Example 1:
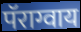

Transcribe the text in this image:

पॅराग्वाय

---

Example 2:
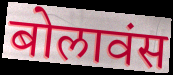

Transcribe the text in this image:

बोलावंस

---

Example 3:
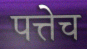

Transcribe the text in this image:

पत्तेच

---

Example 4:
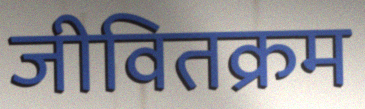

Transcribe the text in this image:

जीवितक्रम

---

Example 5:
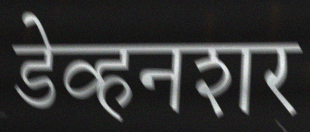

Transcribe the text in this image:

डेव्हनशर